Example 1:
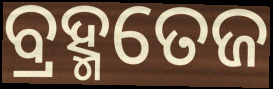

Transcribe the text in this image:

ବ୍ରହ୍ମତେଜ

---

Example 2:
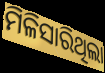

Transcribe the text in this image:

ମିଳିସାରିଥିଲା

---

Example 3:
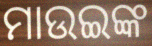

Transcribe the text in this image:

ମାଉଇଙ୍କ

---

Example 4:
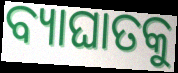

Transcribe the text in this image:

ବ୍ୟାଘାତକୁ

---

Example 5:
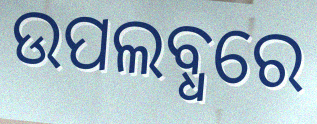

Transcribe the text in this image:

ଉପଲବ୍ଧରେ